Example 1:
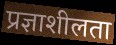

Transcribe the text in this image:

प्रज्ञाशीलता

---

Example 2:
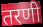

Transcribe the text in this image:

तरणी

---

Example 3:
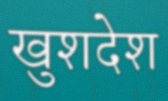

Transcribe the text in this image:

खुशदेश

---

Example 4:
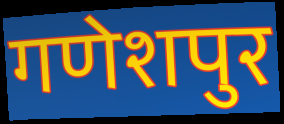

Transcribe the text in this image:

गणेशपुर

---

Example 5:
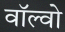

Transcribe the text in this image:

वॉल्‍वो